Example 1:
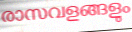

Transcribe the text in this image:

രാസവളങ്ങളും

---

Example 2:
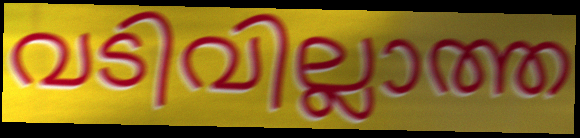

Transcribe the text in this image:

വടിവില്ലാത്ത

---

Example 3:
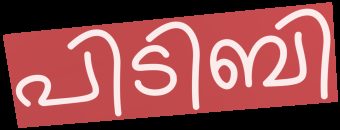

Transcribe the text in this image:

പിടിബി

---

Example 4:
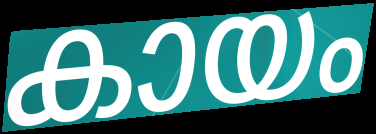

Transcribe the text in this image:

കായം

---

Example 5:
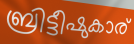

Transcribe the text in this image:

ബ്രിട്ടീഷുകാര്